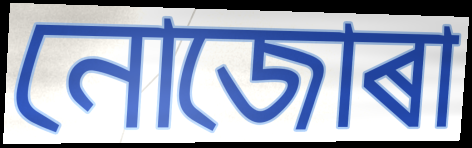
নোজোৰা